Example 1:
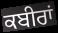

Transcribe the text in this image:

ਕਬੀਰਾਂ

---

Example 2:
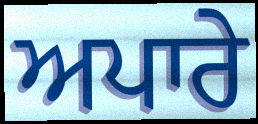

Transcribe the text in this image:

ਅਪਾਰੇ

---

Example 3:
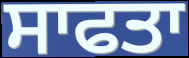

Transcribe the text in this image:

ਸਾਫਤਾ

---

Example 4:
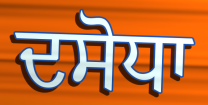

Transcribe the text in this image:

ਦਸੋਧਾ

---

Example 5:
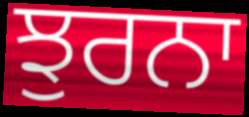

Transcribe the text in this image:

ਝੁਰਨਾ